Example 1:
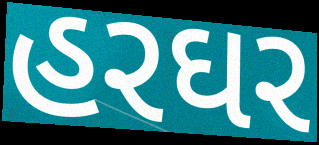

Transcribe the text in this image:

હરઘર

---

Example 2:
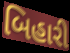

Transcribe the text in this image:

બિહારી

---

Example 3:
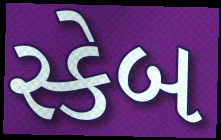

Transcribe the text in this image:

સ્કેબ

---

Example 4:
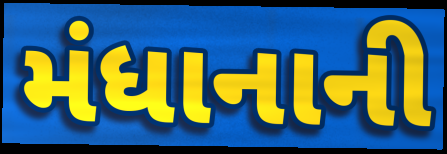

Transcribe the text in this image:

મંધાનાની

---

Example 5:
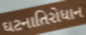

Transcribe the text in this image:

ઘટનાતિરોધાન